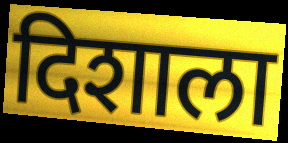
दिशाला